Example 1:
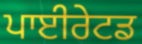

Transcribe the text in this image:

ਪਾਈਰੇਟਡ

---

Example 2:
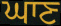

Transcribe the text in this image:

ਘਾਣ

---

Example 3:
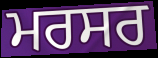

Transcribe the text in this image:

ਮਰਸਰ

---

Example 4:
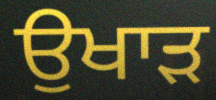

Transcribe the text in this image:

ਉਖਾੜ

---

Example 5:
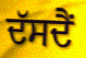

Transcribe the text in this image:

ਦੱਸਦੈਂ